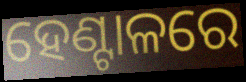
ହେଣ୍ଟାଳରେ